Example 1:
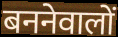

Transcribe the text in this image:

बननेवालों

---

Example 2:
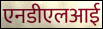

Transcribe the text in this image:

एनडीएलआई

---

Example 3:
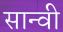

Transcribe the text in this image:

सान्वी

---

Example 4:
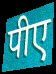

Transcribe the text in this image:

पीए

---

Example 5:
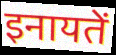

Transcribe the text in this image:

इनायतें